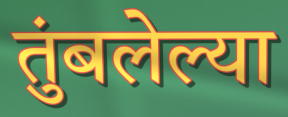
तुंबलेल्या